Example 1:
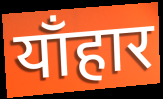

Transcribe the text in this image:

याँहार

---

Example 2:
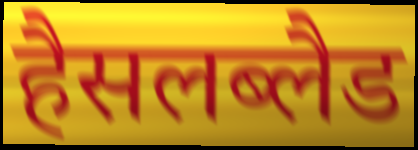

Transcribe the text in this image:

हैसलब्लैड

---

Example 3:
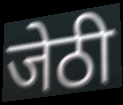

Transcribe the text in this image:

जेठी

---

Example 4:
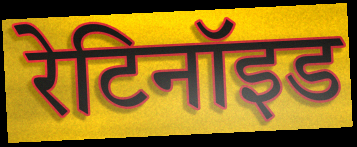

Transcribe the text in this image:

रेटिनॉइड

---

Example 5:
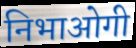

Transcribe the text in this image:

निभाओगी